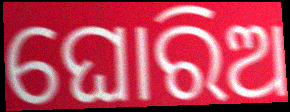
ଘୋରିଅ